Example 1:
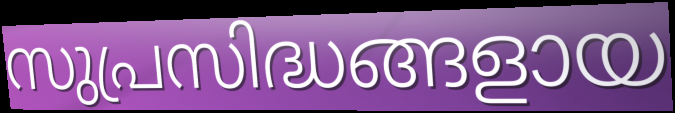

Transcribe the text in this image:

സുപ്രസിദ്ധങ്ങളായ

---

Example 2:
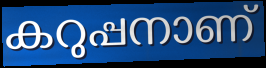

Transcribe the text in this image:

കറുപ്പനാണ്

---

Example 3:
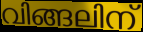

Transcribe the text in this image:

വിങ്ങലിന്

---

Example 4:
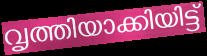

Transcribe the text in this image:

വൃത്തിയാക്കിയിട്ട്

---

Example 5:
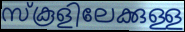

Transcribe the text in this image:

സ്കൂളിലേക്കുള്ള